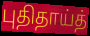
புதிதாய்த்